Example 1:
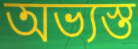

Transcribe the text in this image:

অভ্যস্ত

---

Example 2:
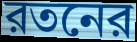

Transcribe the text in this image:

রতনের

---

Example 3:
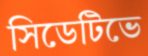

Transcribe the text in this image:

সিডেটিভে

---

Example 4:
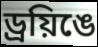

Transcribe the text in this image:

ড্রয়িঙে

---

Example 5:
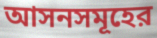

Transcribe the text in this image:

আসনসমূহের